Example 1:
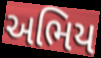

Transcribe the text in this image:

અભિય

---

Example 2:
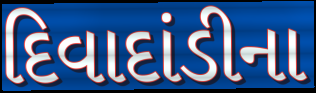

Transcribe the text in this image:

દિવાદાંડીના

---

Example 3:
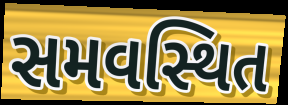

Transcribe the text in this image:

સમવસ્થિત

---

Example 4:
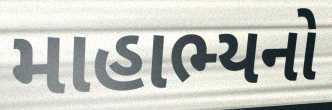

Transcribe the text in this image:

માહાભ્યનો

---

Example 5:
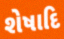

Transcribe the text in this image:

શેષાદિ